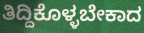
ತಿದ್ದಿಕೊಳ್ಳಬೇಕಾದ